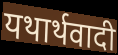
यथार्थवादी